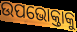
ଉପଭୋକ୍ତାକୁ